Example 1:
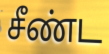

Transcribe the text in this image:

சீண்ட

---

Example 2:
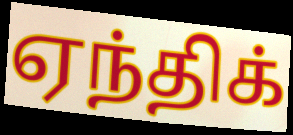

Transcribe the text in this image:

ஏந்திக்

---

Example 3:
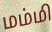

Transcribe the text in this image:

மம்மி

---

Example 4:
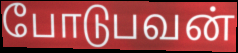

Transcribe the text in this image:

போடுபவன்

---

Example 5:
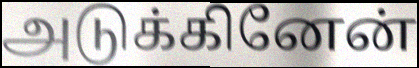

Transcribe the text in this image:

அடுக்கினேன்